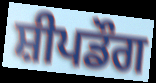
ਸ਼ੀਪਡੌਗ